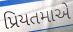
પ્રિયતમાએ